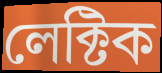
লেক্টিক